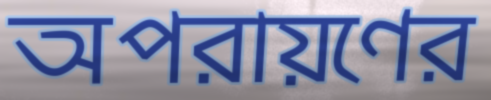
অপরায়ণের